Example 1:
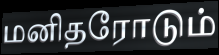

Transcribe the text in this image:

மனிதரோடும்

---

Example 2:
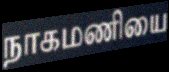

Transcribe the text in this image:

நாகமணியை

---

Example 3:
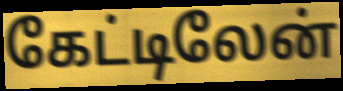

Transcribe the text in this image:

கேட்டிலேன்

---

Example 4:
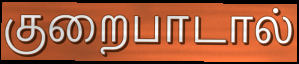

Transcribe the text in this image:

குறைபாடால்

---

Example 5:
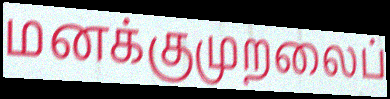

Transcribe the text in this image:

மனக்குமுறலைப்